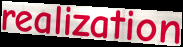
realization